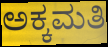
ಅಕ್ಕಮತಿ